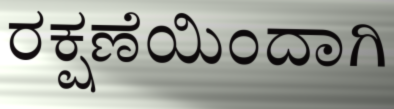
ರಕ್ಷಣೆಯಿಂದಾಗಿ